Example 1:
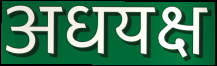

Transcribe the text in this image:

अधयक्ष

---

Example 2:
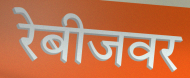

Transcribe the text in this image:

रेबीजवर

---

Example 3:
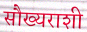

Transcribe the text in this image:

सौख्यराशी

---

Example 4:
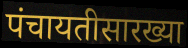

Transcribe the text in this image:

पंचायतीसारख्या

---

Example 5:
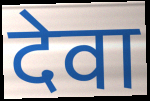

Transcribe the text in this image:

देवा